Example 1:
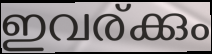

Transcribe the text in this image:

ഇവര്ക്കും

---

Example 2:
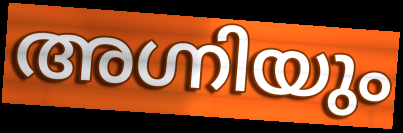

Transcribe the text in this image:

അഗ്നിയും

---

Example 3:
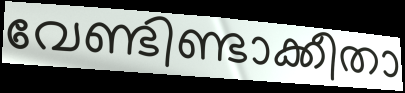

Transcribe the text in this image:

വേണ്ടിണ്ടാക്കീതാ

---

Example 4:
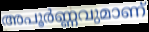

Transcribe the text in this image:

അപൂർണ്ണവുമാണ്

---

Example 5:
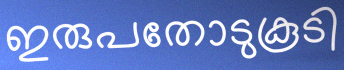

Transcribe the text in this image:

ഇരുപതോടുകൂടി